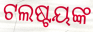
ଟଲଷ୍ଟୟଙ୍କ